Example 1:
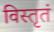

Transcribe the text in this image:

विस्तृतं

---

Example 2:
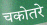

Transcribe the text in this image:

चकोतरे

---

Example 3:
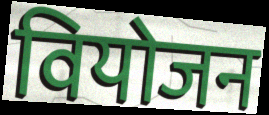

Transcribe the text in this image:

वियोजन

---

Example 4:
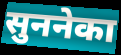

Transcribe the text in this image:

सुननेका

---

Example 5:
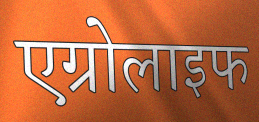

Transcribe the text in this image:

एग्रोलाइफ